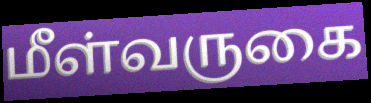
மீள்வருகை